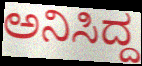
ಅನಿಸಿದ್ದ